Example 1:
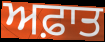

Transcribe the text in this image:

ਅਫ਼ਾਤ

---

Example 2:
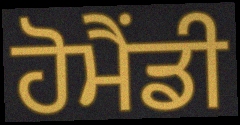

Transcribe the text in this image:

ਹੋਮੈਂਡੀ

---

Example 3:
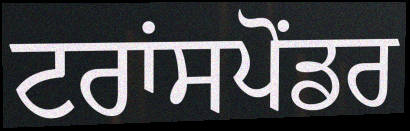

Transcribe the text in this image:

ਟਰਾਂਸਪੋਂਡਰ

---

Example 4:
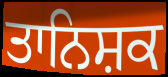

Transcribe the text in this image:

ਤਾਨਿਸ਼ਕ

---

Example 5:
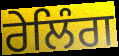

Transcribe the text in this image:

ਰੇਲਿੰਗ